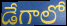
డేగాలో